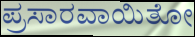
ಪ್ರಸಾರವಾಯಿತೋ